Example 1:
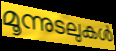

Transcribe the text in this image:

മൂന്നുടലുകൾ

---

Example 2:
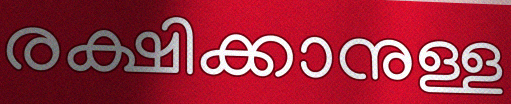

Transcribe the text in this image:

രക്ഷിക്കാനുള്ള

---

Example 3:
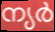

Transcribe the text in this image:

ന്യർ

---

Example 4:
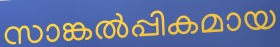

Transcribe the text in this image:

സാങ്കൽപ്പികമായ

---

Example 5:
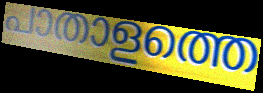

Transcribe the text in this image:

പാതാളത്തെ